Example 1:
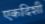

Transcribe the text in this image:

एकदिशी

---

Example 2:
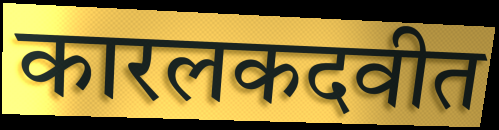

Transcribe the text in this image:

कारलकदवीत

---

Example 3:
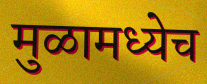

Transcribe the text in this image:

मुळामध्येच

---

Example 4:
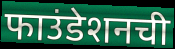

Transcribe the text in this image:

फाउंडेशनची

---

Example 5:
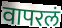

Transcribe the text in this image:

वापरलं